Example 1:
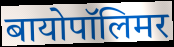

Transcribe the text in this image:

बायोपॉलिमर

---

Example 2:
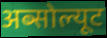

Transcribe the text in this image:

अब्सोल्यूट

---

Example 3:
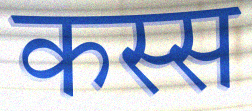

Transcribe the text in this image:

कस्स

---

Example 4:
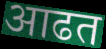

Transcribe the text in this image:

आढत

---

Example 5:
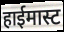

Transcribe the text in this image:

हाईमास्ट